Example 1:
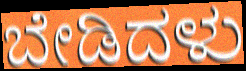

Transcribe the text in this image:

ಬೇಡಿದಳು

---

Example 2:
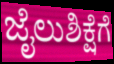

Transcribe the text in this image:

ಜೈಲುಶಿಕ್ಷೆಗೆ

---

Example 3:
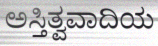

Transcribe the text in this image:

ಅಸ್ತಿತ್ವವಾದಿಯ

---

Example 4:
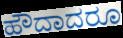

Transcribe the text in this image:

ಹೌದಾದರೂ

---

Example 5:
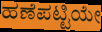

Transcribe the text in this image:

ಹಣೆಪಟ್ಟಿಯೇ